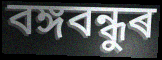
বঙ্গবন্ধুৰ